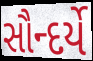
સૌન્દર્યે